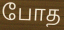
போத